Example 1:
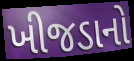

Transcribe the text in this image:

ખીજડાનો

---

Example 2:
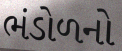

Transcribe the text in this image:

ભંડોળનો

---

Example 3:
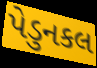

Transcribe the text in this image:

પેડુનકલ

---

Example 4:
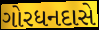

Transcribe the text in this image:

ગોરધનદાસે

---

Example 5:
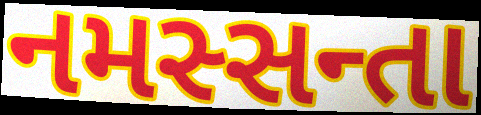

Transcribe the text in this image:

નમસ્સન્તા